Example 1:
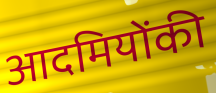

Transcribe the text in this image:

आदमियोंकी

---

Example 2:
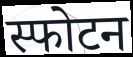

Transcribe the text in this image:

स्फोटन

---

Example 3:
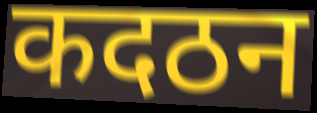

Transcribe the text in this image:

कदठन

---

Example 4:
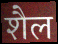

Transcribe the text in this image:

शैल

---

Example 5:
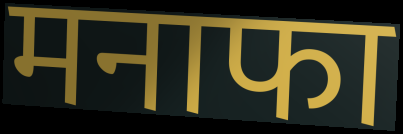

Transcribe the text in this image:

मनाफा